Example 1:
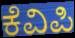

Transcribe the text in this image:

ಕೆವಿಪಿ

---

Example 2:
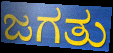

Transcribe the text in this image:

ಜಗತು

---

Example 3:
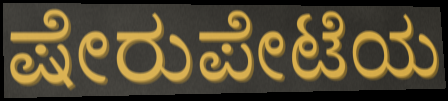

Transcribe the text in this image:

ಷೇರುಪೇಟೆಯ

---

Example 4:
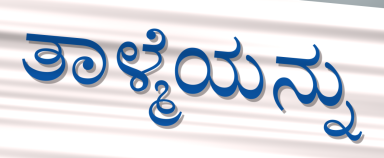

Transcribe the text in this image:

ತಾಳ್ಮೆಯನ್ನು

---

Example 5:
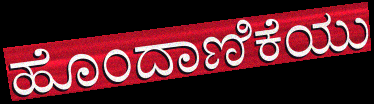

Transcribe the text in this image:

ಹೊಂದಾಣಿಕೆಯು